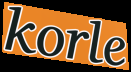
korle